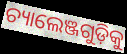
ଚ୍ୟାଲେଞ୍ଜଗୁଡ଼ିକୁ